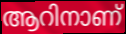
ആറിനാണ്